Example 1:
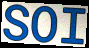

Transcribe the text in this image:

SOI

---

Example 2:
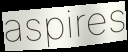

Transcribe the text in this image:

aspires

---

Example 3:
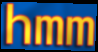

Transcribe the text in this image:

hmm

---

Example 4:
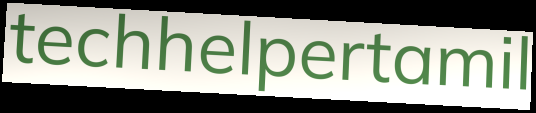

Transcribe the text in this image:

techhelpertamil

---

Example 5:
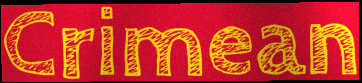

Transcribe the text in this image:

Crimean